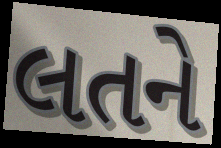
લતને